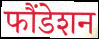
फौंडेशन